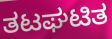
ತಟಘಟಿತ